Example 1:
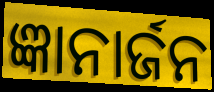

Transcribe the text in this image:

ଜ୍ଞାନାର୍ଜନ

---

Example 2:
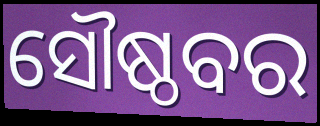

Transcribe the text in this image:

ସୌଷ୍ଠବର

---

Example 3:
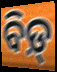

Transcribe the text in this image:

ବିଡ଼୍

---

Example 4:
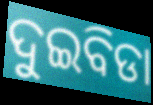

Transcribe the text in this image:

ଦୁଇବିଡା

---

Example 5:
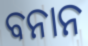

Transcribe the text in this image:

ବନାନ